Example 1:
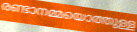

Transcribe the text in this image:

രണ്ടാനമ്മയൊത്തുള്ള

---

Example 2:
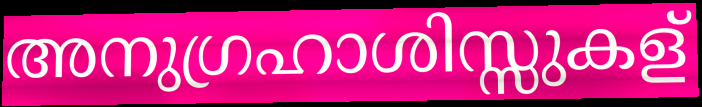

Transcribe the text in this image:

അനുഗ്രഹാശിസ്സുകള്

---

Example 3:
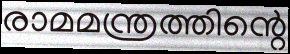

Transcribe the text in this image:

രാമമന്ത്രത്തിന്റെ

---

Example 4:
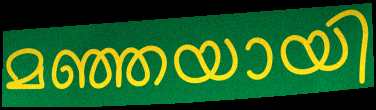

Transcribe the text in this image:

മഞ്ഞയായി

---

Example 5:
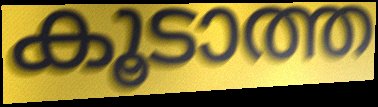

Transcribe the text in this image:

കൂടാത്ത